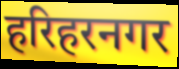
हरिहरनगर